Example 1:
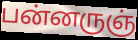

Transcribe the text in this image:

பன்னருஞ்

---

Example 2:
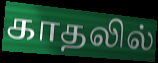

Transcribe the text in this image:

காதலில்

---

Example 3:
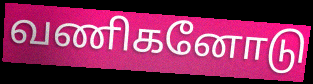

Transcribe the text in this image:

வணிகனோடு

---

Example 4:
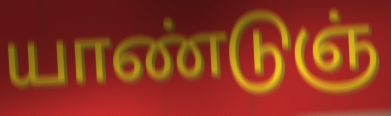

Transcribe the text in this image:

யாண்டுஞ்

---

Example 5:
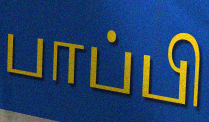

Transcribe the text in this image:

பாப்பி